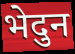
भेदुन